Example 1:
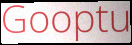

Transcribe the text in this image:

Gooptu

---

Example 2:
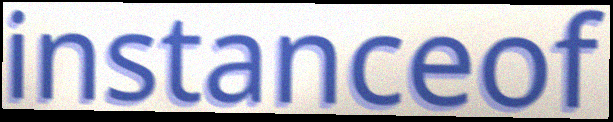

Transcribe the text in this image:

instanceof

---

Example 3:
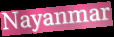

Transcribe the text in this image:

Nayanmar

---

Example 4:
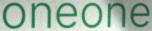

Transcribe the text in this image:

oneone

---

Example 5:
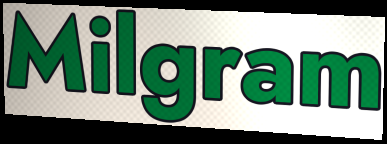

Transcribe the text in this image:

Milgram